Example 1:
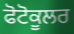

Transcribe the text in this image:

ਫੋਟੋਕੂਲਰ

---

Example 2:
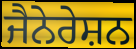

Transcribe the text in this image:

ਜੈਨੇਰੇਸ਼ਨ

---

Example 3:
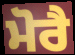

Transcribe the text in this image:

ਮੋਰੈ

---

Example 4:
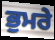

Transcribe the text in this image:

ਭੁਮਰੇ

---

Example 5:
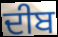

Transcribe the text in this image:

ਦੀਬ